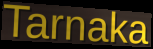
Tarnaka